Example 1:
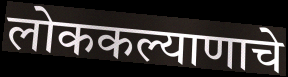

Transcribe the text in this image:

लोककल्याणाचे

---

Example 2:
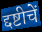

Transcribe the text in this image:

द्दष्टीचें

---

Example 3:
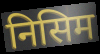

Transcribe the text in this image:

निसिम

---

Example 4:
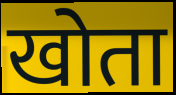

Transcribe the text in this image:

खोता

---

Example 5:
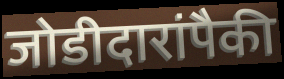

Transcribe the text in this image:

जोडीदारांपैकी